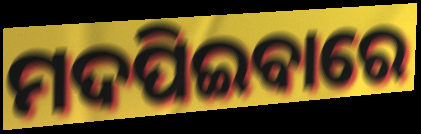
ମଦପିଇବାରେ